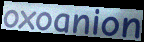
oxoanion